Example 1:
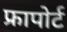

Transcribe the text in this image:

फ्रापोर्ट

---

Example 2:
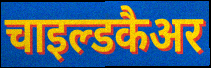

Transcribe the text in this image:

चाइल्डकैअर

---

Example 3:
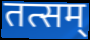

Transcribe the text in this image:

तत्सम्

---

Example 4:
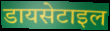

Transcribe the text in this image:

डायसेटाइल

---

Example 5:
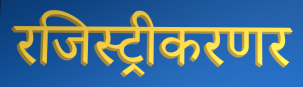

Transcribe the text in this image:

रजिस्ट्रीकरणर